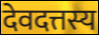
देवदत्तस्य